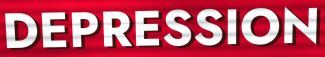
DEPRESSION